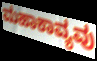
ಮಹಾಕಾವ್ಯವು